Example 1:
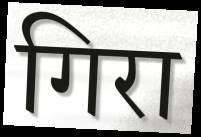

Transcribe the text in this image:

गिरा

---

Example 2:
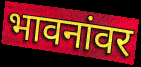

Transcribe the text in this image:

भावनांवर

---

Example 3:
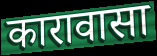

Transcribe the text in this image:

कारावासा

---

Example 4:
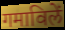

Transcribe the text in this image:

गमाविलें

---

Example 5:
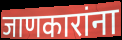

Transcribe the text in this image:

जाणकारांना